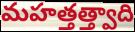
మహత్తత్త్వాది